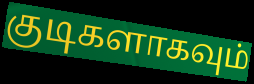
குடிகளாகவும்